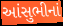
આંસુભીનાં